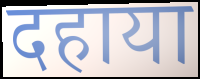
दहाया